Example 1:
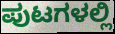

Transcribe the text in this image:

ಪುಟಗಳಲ್ಲಿ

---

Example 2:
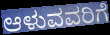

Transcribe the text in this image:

ಆಳುವವರಿಗೆ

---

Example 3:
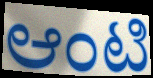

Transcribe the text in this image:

ಆಂಟಿ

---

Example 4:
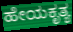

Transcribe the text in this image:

ಹೇಯಕೃತ್ಯ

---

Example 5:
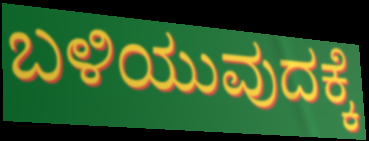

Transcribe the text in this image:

ಬಳಿಯುವುದಕ್ಕೆ